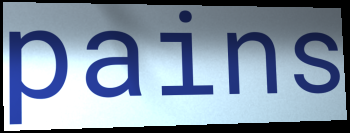
pains